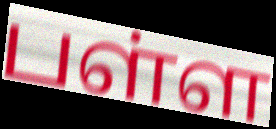
பள்ள